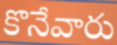
కొనేవారు